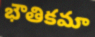
భౌతికమా